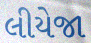
લીયેજા